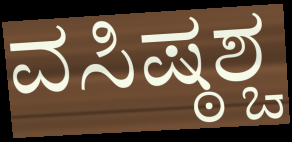
ವಸಿಷ್ಠಶ್ಚ